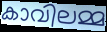
കാവിലമ്മ